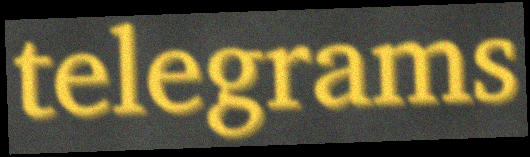
telegrams